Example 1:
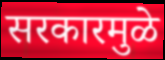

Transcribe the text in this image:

सरकारमुळे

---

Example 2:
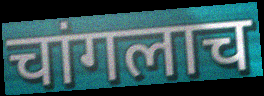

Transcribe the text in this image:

चांगलाच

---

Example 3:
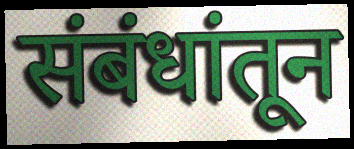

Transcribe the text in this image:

संबंधांतून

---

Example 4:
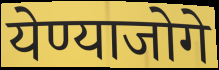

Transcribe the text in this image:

येण्याजोगे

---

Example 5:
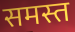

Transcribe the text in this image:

समस्त